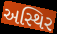
અસ્થિર